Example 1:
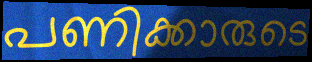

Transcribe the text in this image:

പണിക്കാരുടെ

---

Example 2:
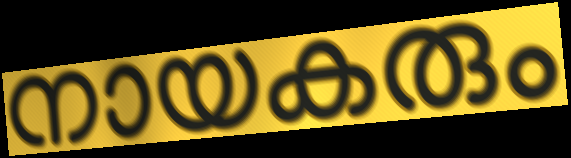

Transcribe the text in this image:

നായകരും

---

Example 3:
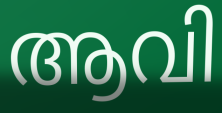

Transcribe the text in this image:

ആവി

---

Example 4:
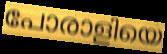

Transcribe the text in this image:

പോരാളിയെ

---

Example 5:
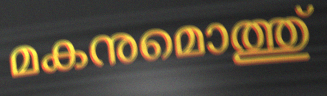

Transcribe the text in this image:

മകനുമൊത്തു്